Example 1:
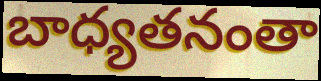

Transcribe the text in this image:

బాధ్యతనంతా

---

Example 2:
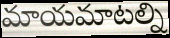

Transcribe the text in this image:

మాయమాటల్ని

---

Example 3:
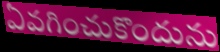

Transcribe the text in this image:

ఏవగించుకొందును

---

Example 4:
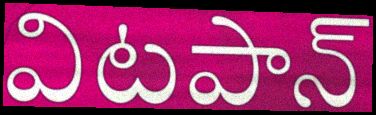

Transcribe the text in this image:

విటపాన్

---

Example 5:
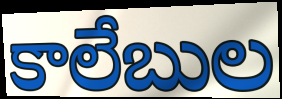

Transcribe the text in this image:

కాలేబుల